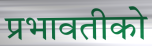
प्रभावतीको